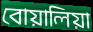
বোয়ালিয়া